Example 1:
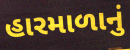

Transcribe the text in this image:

હારમાળાનું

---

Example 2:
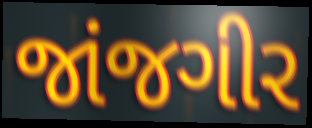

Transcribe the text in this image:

જાંજગીર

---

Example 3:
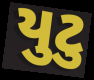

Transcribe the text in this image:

યુટુ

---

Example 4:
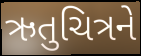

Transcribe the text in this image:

ઋતુચિત્રને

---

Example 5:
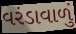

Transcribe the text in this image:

વરંડાવાળું